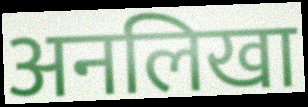
अनलिखा